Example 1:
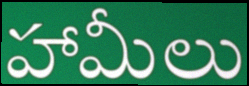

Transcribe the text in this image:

హామీలు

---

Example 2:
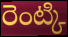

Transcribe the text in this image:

రెంట్కి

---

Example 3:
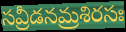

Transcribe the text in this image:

సవ్రీడనమ్రశిరసః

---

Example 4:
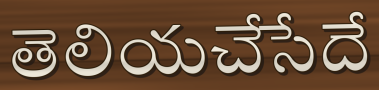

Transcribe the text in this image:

తెలియచేసేదే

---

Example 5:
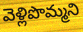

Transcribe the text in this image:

వెళ్లిపొమ్మని